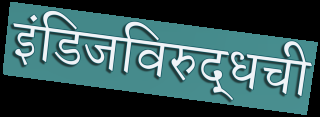
इंडिजविरुद्धची